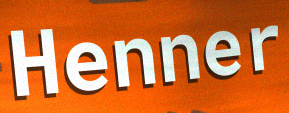
Henner